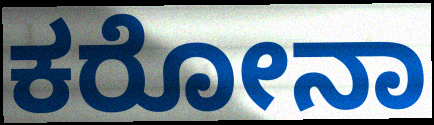
ಕರೋನಾ